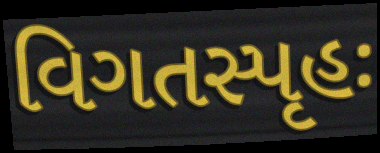
વિગતસ્પૃહઃ